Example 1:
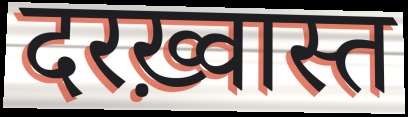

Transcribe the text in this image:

दरख़्वास्त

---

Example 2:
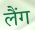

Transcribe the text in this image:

लैंग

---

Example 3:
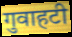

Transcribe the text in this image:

गुवाहटी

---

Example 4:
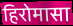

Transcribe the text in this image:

हिरोमासा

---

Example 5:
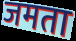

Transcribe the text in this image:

जमता